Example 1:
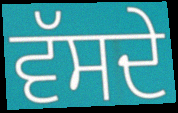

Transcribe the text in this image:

ਵੱਸਦੇ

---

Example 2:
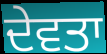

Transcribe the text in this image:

ਦੇਵਤਾ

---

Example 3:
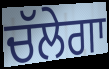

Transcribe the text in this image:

ਚੱਲੇਗਾ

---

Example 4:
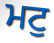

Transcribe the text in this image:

ਮਟੁ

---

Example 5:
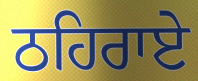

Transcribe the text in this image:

ਠਹਿਰਾਏ